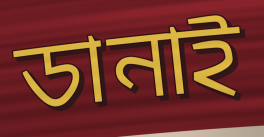
ডানাই